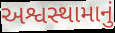
અશ્વસ્થામાનું